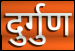
दुर्गुण